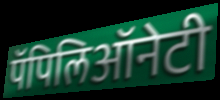
पॅपिलिऑनेटी